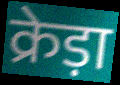
क्रेड़ा